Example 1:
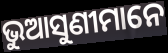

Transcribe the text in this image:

ଭୁଆସୁଣୀମାନେ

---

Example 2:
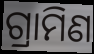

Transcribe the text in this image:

ଗ୍ରାମିଣ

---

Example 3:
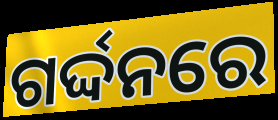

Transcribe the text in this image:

ଗର୍ଦ୍ଦନରେ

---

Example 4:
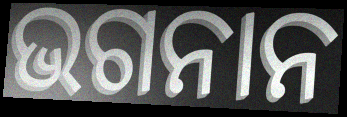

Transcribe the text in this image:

ଭଗନାନ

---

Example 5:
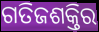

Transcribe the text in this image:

ଗତିଜଶକ୍ତିର